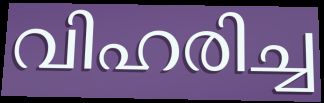
വിഹരിച്ച